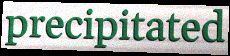
precipitated